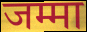
जम्मा